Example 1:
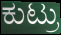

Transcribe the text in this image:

ಕುಟ್ರು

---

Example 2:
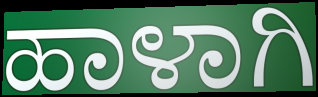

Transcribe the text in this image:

ಹಾಳಾಗಿ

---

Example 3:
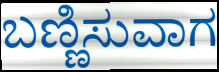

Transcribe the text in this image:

ಬಣ್ಣಿಸುವಾಗ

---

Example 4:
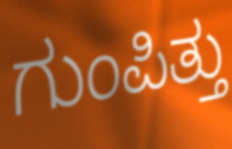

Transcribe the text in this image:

ಗುಂಪಿತ್ತು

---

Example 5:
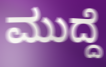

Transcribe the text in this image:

ಮುದ್ದೆ